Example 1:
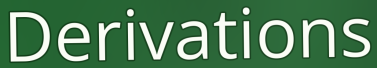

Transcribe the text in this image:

Derivations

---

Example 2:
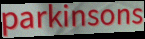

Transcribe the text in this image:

parkinsons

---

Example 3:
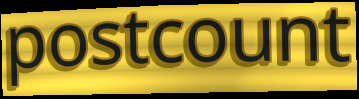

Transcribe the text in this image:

postcount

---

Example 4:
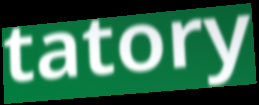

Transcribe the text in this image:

tatory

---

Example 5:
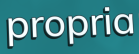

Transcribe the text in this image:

propria